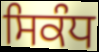
ਸਿਕੰਧ